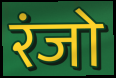
रंजो